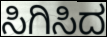
ಸಿಗಿಸಿದ